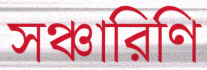
সঞ্চারিণি